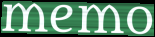
memo